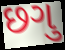
છગુ